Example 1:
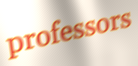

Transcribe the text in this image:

professors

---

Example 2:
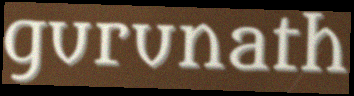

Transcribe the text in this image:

gurunath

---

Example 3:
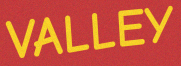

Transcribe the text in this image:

VALLEY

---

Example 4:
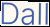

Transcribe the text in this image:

Dall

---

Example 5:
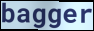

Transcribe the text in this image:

bagger